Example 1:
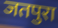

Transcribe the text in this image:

जतपुरा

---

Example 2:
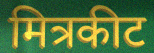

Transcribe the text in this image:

मित्रकीट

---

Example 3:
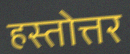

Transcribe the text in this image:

हस्तोत्तर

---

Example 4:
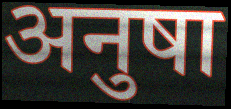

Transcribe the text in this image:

अनुषा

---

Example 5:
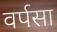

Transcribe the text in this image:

वर्पसा